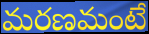
మరణమంటే